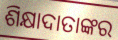
ଶିକ୍ଷାଦାତାଙ୍କର